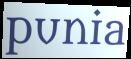
punia